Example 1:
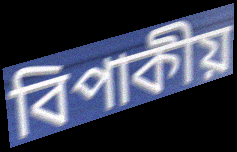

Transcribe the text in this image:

বিপাকীয়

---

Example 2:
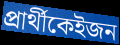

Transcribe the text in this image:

প্ৰাৰ্থীকেইজন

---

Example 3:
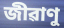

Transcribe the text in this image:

জীৱাণু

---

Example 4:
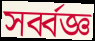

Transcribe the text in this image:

সৰ্ব্বজ্ঞ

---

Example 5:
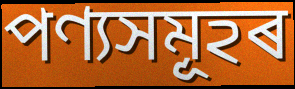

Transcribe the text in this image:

পণ্যসমূহৰ